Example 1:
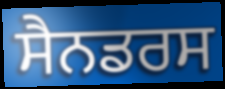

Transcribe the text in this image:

ਸੈਨਡਰਸ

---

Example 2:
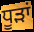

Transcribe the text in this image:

ਧੂਡ਼ਾਂ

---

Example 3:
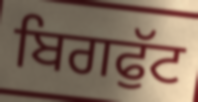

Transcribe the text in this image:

ਬਿਗਫੁੱਟ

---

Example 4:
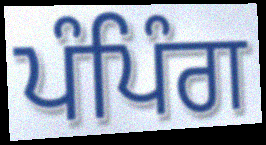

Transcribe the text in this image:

ਪੰਪਿੰਗ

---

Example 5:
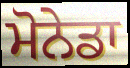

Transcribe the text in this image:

ਮੋਨੇਡਾ